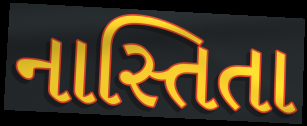
નાસ્તિતા